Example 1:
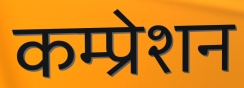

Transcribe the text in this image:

कम्प्रेशन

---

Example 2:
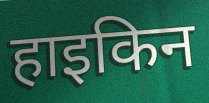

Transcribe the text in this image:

हाइकिन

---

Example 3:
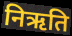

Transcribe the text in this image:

निऋति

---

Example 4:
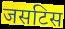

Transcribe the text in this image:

जसटिस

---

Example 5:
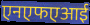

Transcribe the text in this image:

एनएफएआई